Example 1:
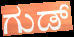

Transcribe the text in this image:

ಗುಡ್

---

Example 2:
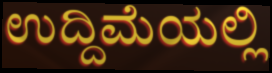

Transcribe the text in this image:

ಉದ್ದಿಮೆಯಲ್ಲಿ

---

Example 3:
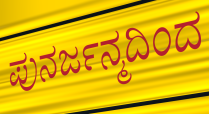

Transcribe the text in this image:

ಪುನರ್ಜನ್ಮದಿಂದ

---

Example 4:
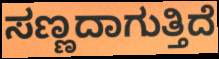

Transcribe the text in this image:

ಸಣ್ಣದಾಗುತ್ತಿದೆ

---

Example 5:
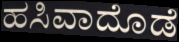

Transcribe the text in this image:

ಹಸಿವಾದೊಡೆ